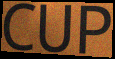
CUP